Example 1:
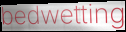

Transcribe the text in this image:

bedwetting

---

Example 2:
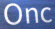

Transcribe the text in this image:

Onc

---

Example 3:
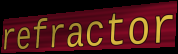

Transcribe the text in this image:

refractor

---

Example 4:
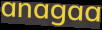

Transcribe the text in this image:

anagaa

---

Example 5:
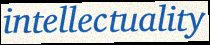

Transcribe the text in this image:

intellectuality